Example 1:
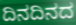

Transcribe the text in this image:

ದಿನದಿನದ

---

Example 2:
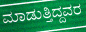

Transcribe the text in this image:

ಮಾಡುತ್ತಿದ್ದವರ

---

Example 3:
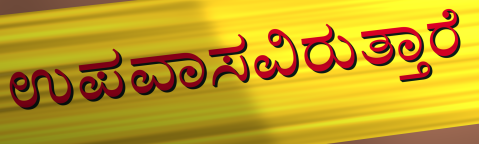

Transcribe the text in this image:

ಉಪವಾಸವಿರುತ್ತಾರೆ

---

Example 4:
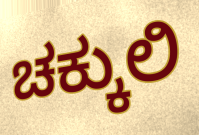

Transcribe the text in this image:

ಚಕ್ಕುಲಿ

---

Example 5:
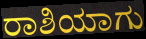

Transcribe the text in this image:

ರಾಶಿಯಾಗು